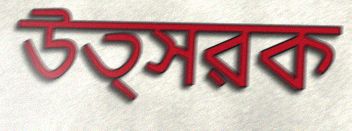
উত্সৱক